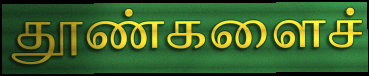
தூண்களைச்